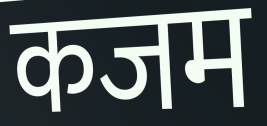
कजम